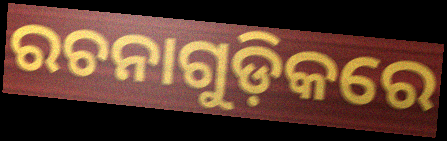
ରଚନାଗୁଡ଼ିକରେ